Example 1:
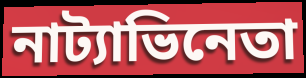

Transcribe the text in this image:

নাট্যাভিনেতা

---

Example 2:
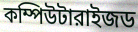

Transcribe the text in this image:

কম্পিউটারাইজড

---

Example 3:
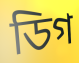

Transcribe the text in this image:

ডিগ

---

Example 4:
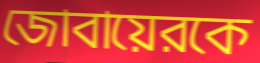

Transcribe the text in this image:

জোবায়েরকে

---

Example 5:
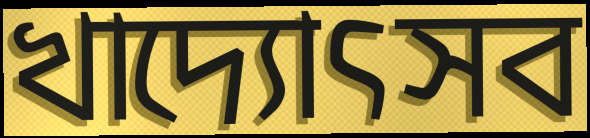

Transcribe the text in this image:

খাদ্যোৎসব